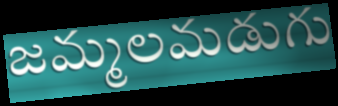
జమ్మలమడుగు